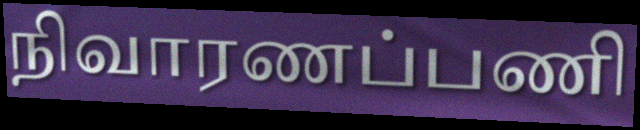
நிவாரணப்பணி